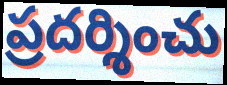
ప్రదర్శించు